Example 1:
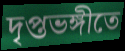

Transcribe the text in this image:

দৃপ্তভঙ্গীতে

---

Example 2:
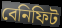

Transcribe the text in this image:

বেনিফিট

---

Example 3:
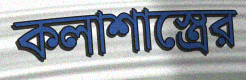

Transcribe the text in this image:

কলাশাস্ত্রের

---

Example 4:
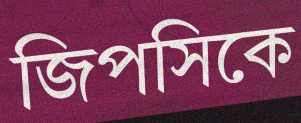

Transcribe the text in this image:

জিপসিকে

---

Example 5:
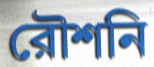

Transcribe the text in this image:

রৌশনি